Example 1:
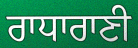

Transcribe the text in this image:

ਰਾਧਾਰਾਣੀ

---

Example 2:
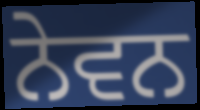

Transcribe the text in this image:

ਨੇਵਨ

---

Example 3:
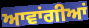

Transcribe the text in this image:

ਆਵਾਂਗੀਆਂ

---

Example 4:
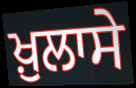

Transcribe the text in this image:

ਖ਼ੁਲਾਸੇ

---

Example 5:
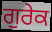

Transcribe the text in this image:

ਗੁਰੇਕ